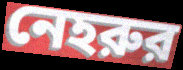
নেহরুর